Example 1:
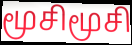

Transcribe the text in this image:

மூசிமூசி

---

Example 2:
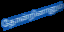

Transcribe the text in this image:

தோன்றினானும்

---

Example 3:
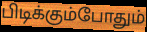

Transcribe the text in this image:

பிடிக்கும்போதும்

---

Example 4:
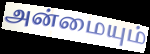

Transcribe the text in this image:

அன்மையும்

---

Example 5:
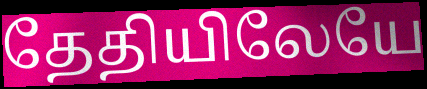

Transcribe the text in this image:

தேதியிலேயே